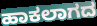
ಹಾಕಲಾಗದ